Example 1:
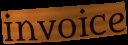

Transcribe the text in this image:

invoice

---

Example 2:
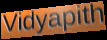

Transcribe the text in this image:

Vidyapith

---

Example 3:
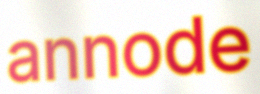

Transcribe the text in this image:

annode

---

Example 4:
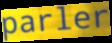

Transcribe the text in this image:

parler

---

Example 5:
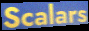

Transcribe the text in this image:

Scalars